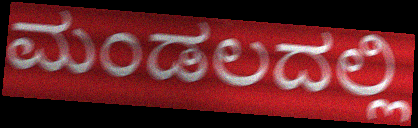
ಮಂಡಲದಲ್ಲಿ